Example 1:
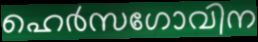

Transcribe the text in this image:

ഹെർസഗോവിന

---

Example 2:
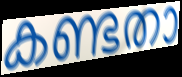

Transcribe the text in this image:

കണ്ടതാ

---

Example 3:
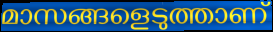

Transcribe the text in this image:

മാസങ്ങളെടുത്താണ്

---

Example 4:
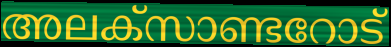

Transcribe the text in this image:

അലക്സാണ്ടറോട്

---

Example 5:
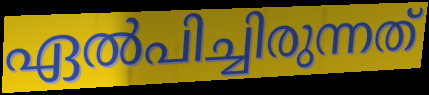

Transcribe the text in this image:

ഏൽപിച്ചിരുന്നത്